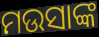
ମଉସାଙ୍କ